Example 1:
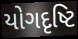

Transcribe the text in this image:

યોગદૃષ્ટિ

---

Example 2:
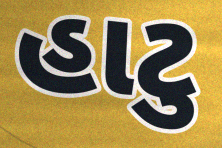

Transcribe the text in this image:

હાટુ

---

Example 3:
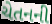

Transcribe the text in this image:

ચેતનની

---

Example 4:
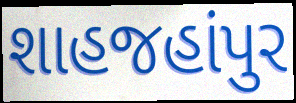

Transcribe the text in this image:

શાહજહાંપુર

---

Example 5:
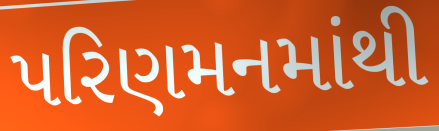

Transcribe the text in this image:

પરિણમનમાંથી